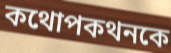
কথোপকথনকে